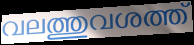
വലത്തുവശത്ത്